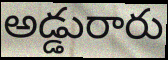
అడ్డురారు